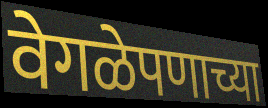
वेगळेपणाच्या